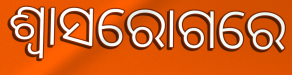
ଶ୍ଵାସରୋଗରେ